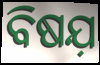
ବିଷଯ଼